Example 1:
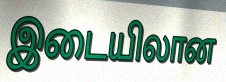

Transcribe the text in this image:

இடையிலான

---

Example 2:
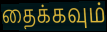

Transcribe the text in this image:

தைக்கவும்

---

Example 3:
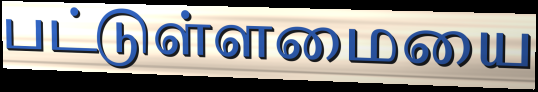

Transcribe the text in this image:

பட்டுள்ளமையை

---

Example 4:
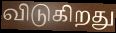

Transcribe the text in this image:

விடுகிறது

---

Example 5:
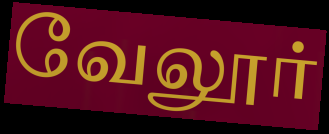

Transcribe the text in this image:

வேலூர்